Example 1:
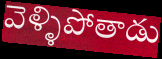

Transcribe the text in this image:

వెళ్ళిపోతాడు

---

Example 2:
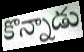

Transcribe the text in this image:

కొన్నాడు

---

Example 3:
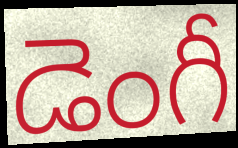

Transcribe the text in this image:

డెంగీ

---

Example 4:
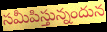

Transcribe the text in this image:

సమీపిస్తున్నందున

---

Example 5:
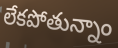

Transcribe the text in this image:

లేకపోతున్నాం